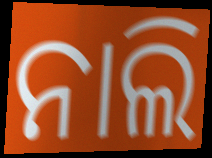
ନାଲି